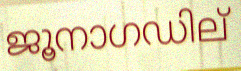
ജൂനാഗഡില്